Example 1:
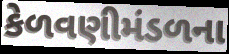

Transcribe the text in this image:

કેળવણીમંડળના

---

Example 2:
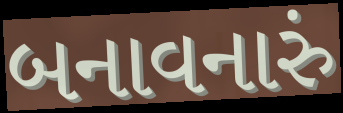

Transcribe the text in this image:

બનાવનારું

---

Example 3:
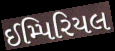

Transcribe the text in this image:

ઈમ્પિરિયલ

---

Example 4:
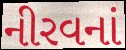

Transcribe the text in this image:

નીરવનાં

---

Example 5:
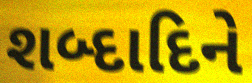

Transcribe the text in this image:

શબ્દાદિને